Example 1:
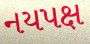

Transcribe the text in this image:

નયપક્ષ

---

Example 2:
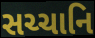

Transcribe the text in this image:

સચ્ચાનિ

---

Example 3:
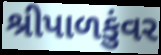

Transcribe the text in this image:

શ્રીપાળકુંવર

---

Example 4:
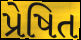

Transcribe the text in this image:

પ્રેષિત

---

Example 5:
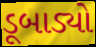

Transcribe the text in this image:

ડૂબાડ્યો